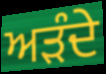
ਅੜੰਦੇ